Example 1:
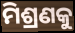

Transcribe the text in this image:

ମିଶ୍ରଣକୁ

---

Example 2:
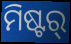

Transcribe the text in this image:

ମିଷ୍ଟର୍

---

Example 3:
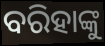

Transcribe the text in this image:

ବରିହାଙ୍କୁ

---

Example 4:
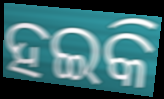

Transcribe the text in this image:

ହଇକି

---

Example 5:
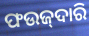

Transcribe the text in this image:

ଫଉଜ୍‌ଦାରି